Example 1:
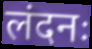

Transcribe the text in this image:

लंदनः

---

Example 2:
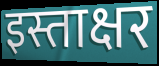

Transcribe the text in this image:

इस्ताक्षर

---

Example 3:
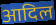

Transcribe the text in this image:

आदिल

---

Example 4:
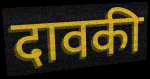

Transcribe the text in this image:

दावकी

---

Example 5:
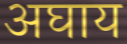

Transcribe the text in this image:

अघाय